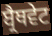
ਬ੍ਰੈਥਵੇਟ